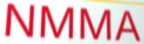
NMMA